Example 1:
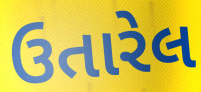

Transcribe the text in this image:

ઉતારેલ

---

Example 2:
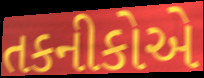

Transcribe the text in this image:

તકનીકોએ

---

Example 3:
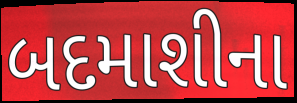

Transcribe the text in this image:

બદમાશીના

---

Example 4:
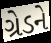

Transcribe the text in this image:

ગ્રેડને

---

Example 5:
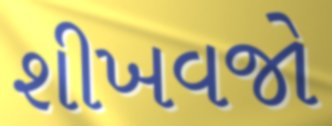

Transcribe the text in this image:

શીખવજો